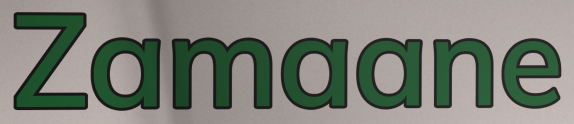
Zamaane